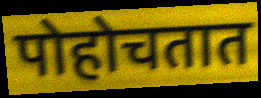
पोहोचतात